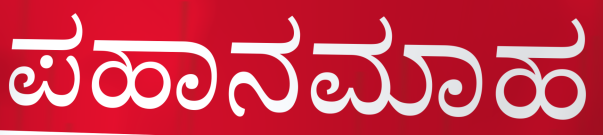
ಪಹಾನಮಾಹ